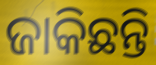
ଜାକିଛନ୍ତି